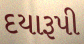
દયારૂપી